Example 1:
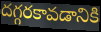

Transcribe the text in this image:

దగ్గరకావడానికి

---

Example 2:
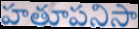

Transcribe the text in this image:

హతూపనిసా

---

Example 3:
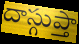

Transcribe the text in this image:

దాస్గుప్తా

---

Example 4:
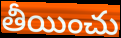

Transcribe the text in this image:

తీయించు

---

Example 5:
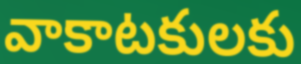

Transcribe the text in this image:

వాకాటకులకు